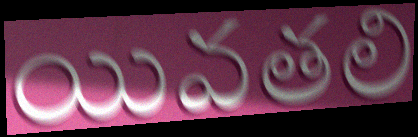
యివతలి